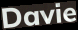
Davie